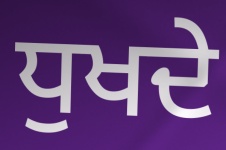
ਧੁਖਦੇ